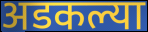
अडकल्या